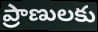
ప్రాణులకు